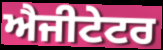
ਐਜੀਟੇਟਰ